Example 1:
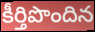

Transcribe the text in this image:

కీర్తిపొందిన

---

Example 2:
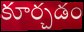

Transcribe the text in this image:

కూర్చడం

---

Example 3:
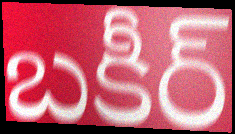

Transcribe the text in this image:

బకీర్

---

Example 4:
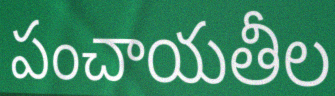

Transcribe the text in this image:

పంచాయతీల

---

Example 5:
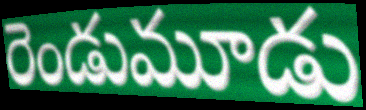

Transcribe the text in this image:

రెండుమూడు